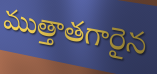
ముత్తాతగారైన